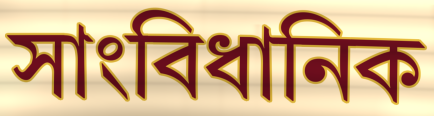
সাংবিধানিক